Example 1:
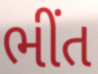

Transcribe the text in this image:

ભીંત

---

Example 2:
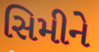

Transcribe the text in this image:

સિમીને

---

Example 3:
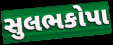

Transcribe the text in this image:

સુલભકોપા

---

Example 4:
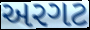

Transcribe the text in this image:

અરગટ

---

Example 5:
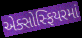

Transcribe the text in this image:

એક્સોસ્ફિયરમાં